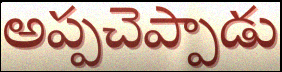
అప్పచెప్పాడు